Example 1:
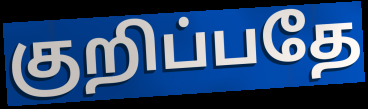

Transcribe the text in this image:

குறிப்பதே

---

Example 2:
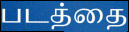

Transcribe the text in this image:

படத்தை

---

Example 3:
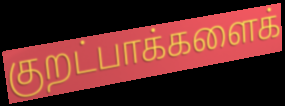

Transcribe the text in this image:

குறட்பாக்களைக்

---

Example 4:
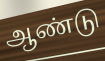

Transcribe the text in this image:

ஆண்டு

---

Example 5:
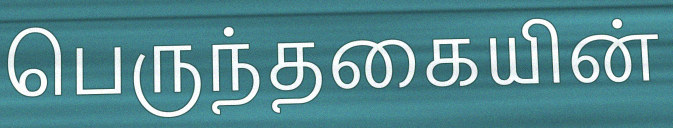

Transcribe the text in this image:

பெருந்தகையின்